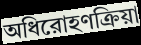
অধিরোহণক্রিয়া